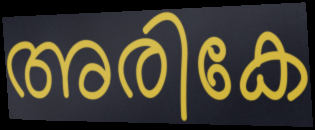
അരികേ